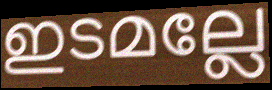
ഇടമല്ലേ